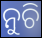
ନୁଚି